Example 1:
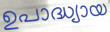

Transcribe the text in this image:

ഉപാദ്ധ്യായ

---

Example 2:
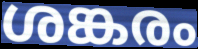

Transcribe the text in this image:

ശങ്കരം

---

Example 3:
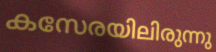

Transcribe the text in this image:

കസേരയിലിരുന്നു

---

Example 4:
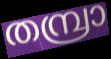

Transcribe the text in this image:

തമ്പ്രാ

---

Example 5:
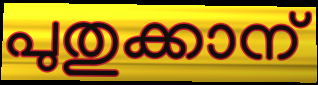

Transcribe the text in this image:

പുതുക്കാന്